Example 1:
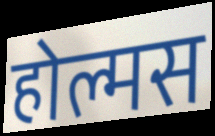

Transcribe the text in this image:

होल्मस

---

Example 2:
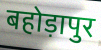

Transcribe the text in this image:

बहोड़ापुर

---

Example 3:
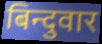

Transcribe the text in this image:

बिन्दुवार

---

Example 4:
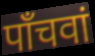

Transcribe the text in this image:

पाँचवां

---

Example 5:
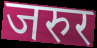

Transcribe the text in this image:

जरुर